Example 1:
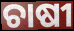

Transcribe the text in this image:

ଚାଷୀ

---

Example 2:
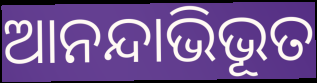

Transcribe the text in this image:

ଆନନ୍ଦାଭିଭୂତ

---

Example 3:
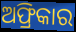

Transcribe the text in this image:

ଅଫ୍ରିକାର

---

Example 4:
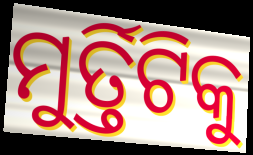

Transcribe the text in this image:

ମୁର୍ତ୍ତିଟିକୁ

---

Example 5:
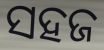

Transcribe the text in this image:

ସହଜ